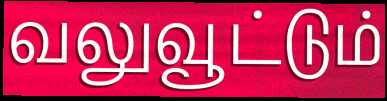
வலுவூட்டும்